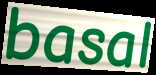
basal